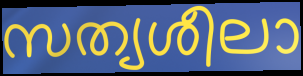
സത്യശീലാ